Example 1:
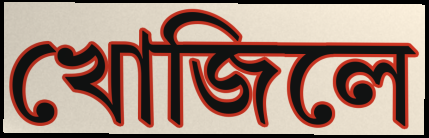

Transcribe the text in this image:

খোজিলে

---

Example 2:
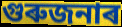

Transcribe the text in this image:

গুৰুজনাৰ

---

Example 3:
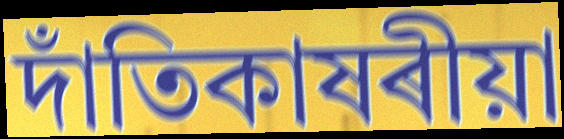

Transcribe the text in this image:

দাঁতিকাষৰীয়া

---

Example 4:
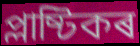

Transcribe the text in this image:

প্লাষ্টিকৰ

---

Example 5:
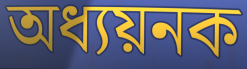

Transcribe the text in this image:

অধ্যয়নক